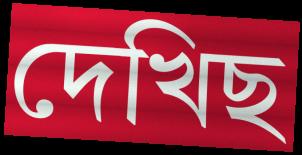
দেখিছ